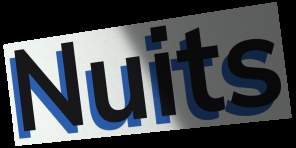
Nuits